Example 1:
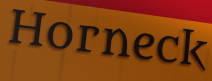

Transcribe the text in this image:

Horneck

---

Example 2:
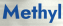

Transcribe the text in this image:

Methyl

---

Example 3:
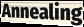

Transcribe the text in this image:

Annealing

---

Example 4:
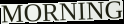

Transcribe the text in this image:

MORNING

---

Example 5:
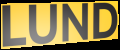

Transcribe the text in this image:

LUND